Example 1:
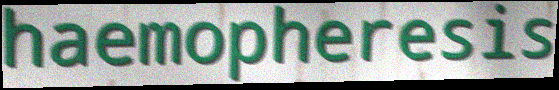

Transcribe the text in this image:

haemopheresis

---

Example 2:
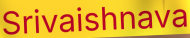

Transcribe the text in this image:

Srivaishnava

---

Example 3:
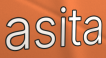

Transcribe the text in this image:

asita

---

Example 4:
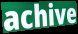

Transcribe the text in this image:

achive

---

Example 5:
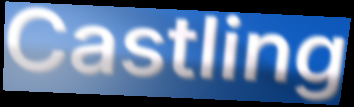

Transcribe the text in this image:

Castling